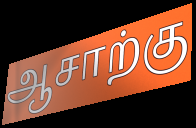
ஆசாற்கு